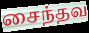
சைந்தவ